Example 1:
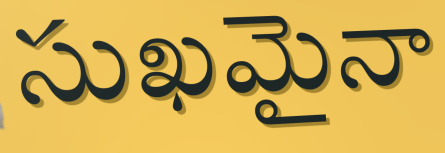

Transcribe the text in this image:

సుఖమైనా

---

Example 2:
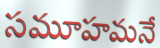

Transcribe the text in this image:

సమూహమనే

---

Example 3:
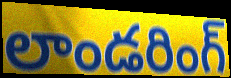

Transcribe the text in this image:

లాండరింగ్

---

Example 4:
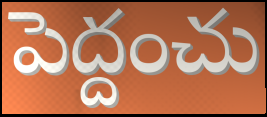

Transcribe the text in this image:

పెద్దంచు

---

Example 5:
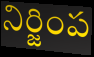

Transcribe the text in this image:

నిర్జింప